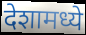
देशामध्ये